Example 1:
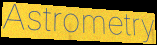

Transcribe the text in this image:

Astrometry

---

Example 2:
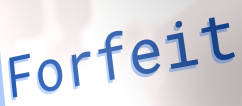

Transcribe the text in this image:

Forfeit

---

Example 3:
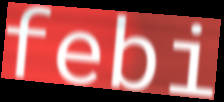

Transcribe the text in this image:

febi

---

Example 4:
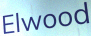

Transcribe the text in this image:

Elwood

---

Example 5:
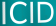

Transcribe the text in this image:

ICID